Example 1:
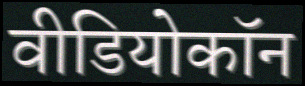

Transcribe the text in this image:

वीडियोकॉन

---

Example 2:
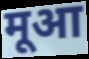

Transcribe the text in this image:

मूआ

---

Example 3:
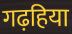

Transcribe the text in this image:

गढ़हिया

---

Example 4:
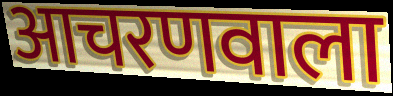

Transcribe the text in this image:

आचरणवाला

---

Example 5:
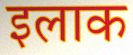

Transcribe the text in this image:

इलाक